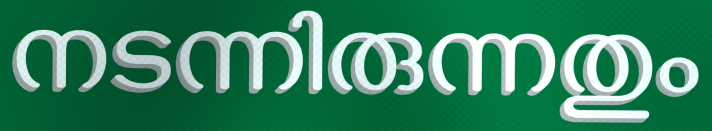
നടന്നിരുന്നതും